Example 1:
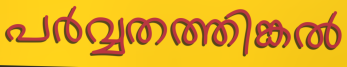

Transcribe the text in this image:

പർവ്വതത്തിങ്കൽ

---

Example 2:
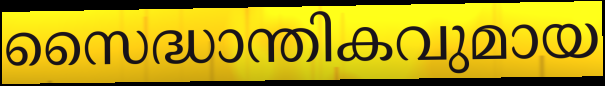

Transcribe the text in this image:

സൈദ്ധാന്തികവുമായ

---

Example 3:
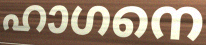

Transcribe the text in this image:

ഹാഗനെ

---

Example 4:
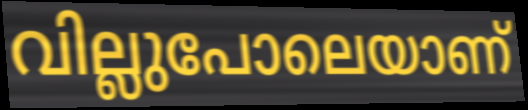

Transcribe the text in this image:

വില്ലുപോലെയാണ്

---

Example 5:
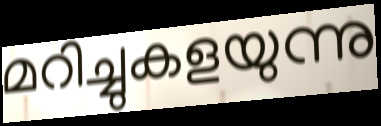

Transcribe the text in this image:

മറിച്ചുകളയുന്നു